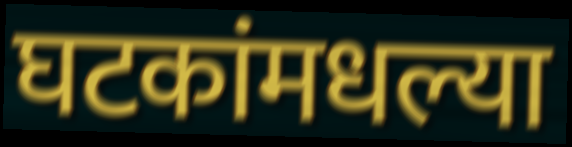
घटकांमधल्या